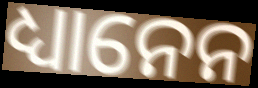
ଧ୍ୟାନେନ